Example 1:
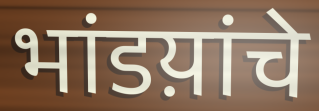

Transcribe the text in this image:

भांडय़ांचे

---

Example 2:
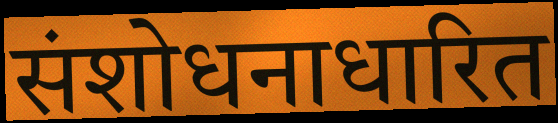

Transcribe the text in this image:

संशोधनाधारित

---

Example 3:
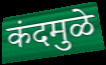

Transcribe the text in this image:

कंदमुळे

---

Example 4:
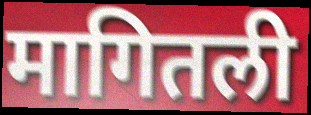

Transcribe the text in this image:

मागितली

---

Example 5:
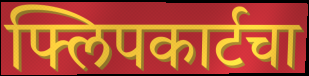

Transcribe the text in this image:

फ्लिपकार्टचा